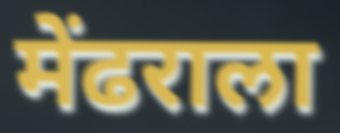
मेंढराला